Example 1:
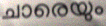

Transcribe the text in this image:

ചാരെയും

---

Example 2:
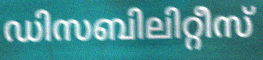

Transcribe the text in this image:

ഡിസബിലിറ്റീസ്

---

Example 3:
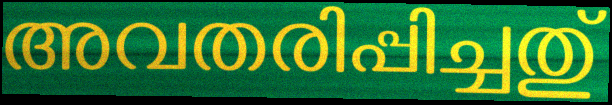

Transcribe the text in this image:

അവതരിപ്പിച്ചതു്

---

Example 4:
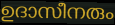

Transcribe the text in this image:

ഉദാസീനരും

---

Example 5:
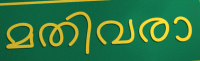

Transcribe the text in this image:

മതിവരാ